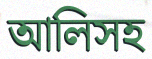
আলিসহ